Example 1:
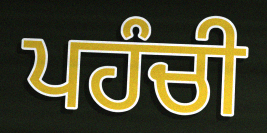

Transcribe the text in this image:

ਪਹੰਚੀ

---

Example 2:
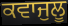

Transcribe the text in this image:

ਕਵਾਜੁਲੂ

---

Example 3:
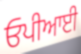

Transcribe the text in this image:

ਓਪੀਆਈ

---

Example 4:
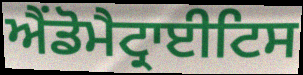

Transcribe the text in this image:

ਐਂਡੋਮੈਟ੍ਰਾਈਟਿਸ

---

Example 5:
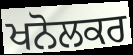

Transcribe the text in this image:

ਖਨੋਲਕਰ